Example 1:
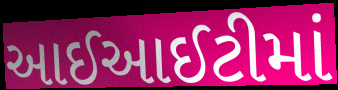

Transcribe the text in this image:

આઈઆઈટીમાં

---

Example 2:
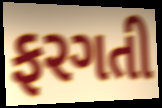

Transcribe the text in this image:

ફરગતી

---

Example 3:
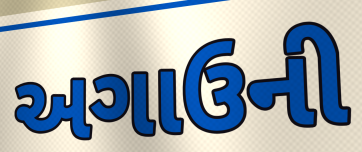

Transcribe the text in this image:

અગાઉની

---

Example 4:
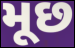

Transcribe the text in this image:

મૂછ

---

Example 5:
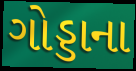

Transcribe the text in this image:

ગોડ્ડાના